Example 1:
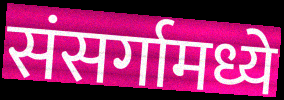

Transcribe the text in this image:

संसर्गामध्ये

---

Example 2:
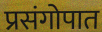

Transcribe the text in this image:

प्रसंगोपात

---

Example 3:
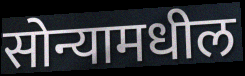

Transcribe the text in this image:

सोन्यामधील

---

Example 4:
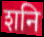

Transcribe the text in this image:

शनि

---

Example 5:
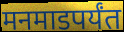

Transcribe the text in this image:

मनमाडपर्यंत